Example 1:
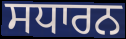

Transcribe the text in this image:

ਸਧਾਰਨ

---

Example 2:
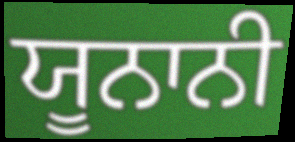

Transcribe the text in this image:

ਯੂਨਾਨੀ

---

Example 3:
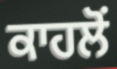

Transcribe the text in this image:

ਕਾਹਲੋਂ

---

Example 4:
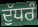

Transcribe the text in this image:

ਦੁੱਧਰੰ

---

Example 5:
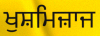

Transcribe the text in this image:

ਖੁਸ਼ਮਿਜ਼ਾਜ